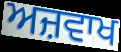
ਅਜ਼ਵਾਖ